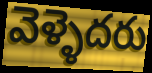
వెళ్ళెదరు